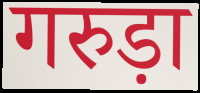
गरुड़ा